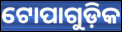
ଟୋପାଗୁଡ଼ିକ